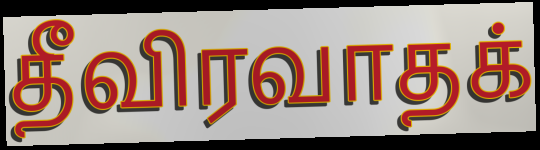
தீவிரவாதக்